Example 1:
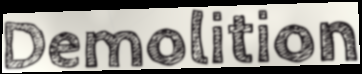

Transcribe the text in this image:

Demolition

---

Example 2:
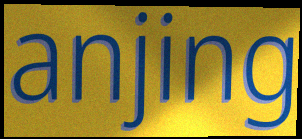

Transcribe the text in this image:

anjing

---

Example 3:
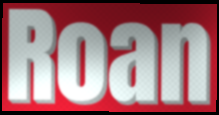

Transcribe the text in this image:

Roan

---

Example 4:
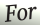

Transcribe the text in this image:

For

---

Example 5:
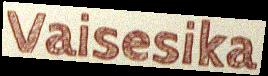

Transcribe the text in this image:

Vaisesika